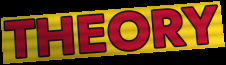
THEORY